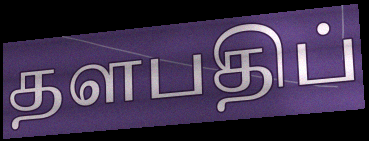
தளபதிப்